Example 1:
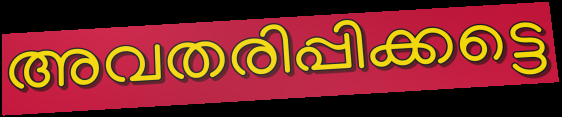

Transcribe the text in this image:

അവതരിപ്പിക്കട്ടെ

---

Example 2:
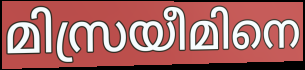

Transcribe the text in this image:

മിസ്രയീമിനെ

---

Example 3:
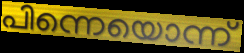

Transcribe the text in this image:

പിന്നെയൊന്ന്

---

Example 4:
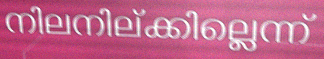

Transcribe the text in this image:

നിലനില്ക്കില്ലെന്ന്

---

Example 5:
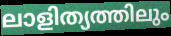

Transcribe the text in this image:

ലാളിത്യത്തിലും